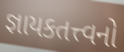
જ્ઞાયકતત્ત્વનો